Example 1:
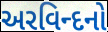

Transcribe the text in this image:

અરવિન્દનો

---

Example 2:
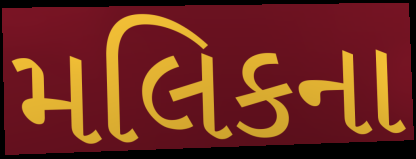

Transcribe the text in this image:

મલિકના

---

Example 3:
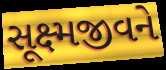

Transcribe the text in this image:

સૂક્ષ્મજીવને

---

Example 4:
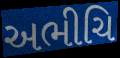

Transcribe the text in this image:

અભીચિ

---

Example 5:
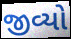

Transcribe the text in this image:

જીવ્યો